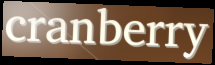
cranberry